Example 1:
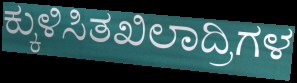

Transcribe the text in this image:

ಕ್ಕುಳಿಸಿತಖಿಲಾದ್ರಿಗಳ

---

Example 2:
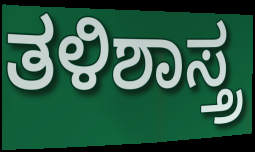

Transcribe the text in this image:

ತಳಿಶಾಸ್ತ್ರ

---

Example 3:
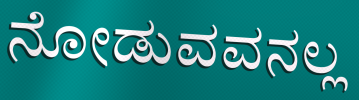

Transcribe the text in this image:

ನೋಡುವವನಲ್ಲ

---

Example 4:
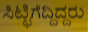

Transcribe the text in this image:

ಸಿಟ್ಟಿಗೆದ್ದಿದ್ದರು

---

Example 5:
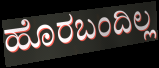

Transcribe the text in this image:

ಹೊರಬಂದಿಲ್ಲ